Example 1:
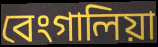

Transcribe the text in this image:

বেংগালিয়া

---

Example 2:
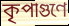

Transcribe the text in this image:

কৃপাগুণে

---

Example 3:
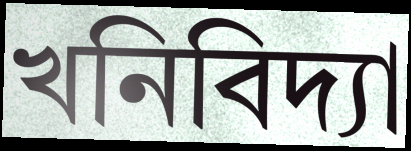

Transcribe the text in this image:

খনিবিদ্যা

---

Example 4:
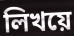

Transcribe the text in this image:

লিখয়ে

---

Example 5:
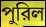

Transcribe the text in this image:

পুরিল